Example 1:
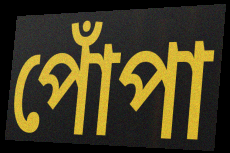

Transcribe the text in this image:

পোঁপা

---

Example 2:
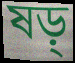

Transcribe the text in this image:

ষড়্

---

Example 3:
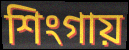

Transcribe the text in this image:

শিংগায়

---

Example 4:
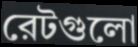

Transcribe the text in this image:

রেটগুলো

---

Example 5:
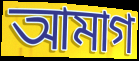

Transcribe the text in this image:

আমাগ